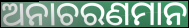
ଅନାଚରଣମାନ